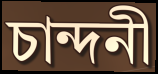
চান্দনী